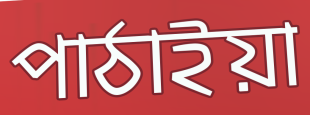
পাঠাইয়া